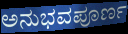
ಅನುಭವಪೂರ್ಣ